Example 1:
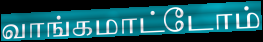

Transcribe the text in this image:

வாங்கமாட்டோம்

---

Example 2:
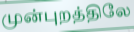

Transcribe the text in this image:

முன்புறத்திலே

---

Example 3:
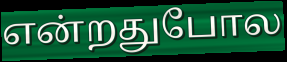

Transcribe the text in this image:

என்றதுபோல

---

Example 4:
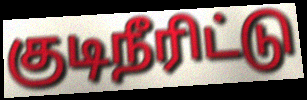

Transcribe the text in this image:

குடிநீரிட்டு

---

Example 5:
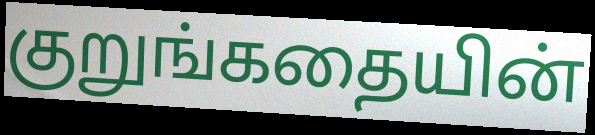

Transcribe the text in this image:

குறுங்கதையின்